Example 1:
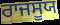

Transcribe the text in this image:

ਰਾਜਸੂਯ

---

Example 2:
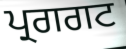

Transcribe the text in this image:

ਪ੍ਰਗਗਟ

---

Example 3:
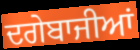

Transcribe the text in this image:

ਦਗੇਬਾਜੀਆਂ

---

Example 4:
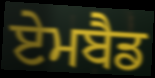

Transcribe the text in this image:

ਏਮਬੈਡ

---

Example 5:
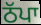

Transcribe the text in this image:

ਠੱਪਾ